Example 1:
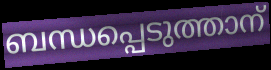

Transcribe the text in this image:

ബന്ധപ്പെടുത്താന്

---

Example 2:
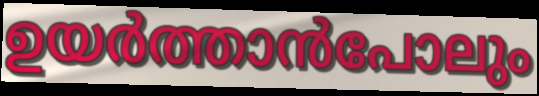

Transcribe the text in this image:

ഉയർത്താൻപോലും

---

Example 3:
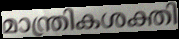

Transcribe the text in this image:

മാന്ത്രികശക്തി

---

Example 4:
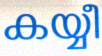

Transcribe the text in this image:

കയ്യീ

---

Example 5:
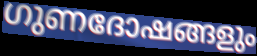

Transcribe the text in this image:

ഗുണദോഷങ്ങളും